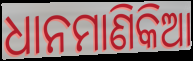
ଧାନମାଣିକିଆ